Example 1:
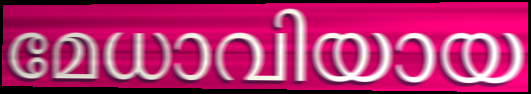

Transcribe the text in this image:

മേധാവിയായ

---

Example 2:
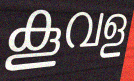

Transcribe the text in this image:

കൂവള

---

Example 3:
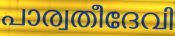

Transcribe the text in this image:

പാര്വതീദേവി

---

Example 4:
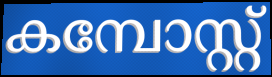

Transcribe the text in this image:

കമ്പോസ്റ്റ്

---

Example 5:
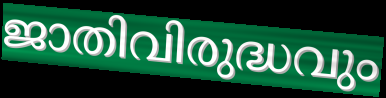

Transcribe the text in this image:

ജാതിവിരുദ്ധവും